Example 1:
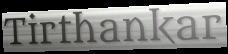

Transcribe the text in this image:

Tirthankar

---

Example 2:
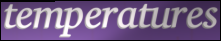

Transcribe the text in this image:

temperatures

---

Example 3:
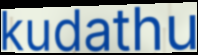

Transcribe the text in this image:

kudathu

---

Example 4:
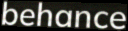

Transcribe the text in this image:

behance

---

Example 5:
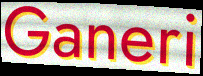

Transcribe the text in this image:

Ganeri